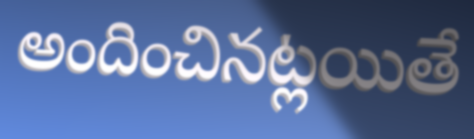
అందించినట్లయితే